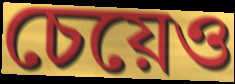
চেয়েও